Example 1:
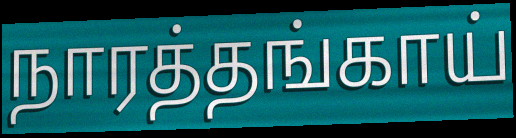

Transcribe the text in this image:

நாரத்தங்காய்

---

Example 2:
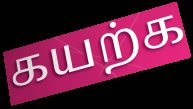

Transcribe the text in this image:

கயற்க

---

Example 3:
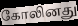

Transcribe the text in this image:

கோலினது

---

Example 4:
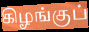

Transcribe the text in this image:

கிழங்குப்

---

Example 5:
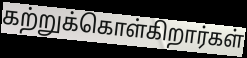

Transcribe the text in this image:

கற்றுக்கொள்கிறார்கள்